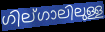
ഗില്ഗാലിലുള്ള